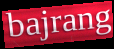
bajrang